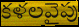
కళలవైపు